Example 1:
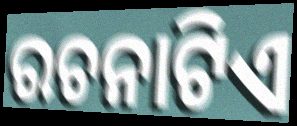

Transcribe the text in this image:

ରଚନାଟିଏ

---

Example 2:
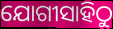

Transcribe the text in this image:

ଯୋଗୀସାହିଠୁ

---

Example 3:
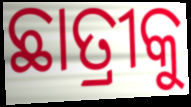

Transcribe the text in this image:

ଛାତ୍ରୀକୁ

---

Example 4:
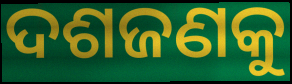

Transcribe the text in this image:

ଦଶଜଣକୁ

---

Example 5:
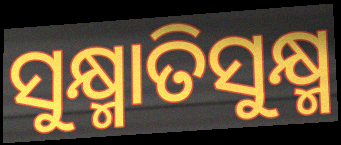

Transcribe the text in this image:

ସୁକ୍ଷ୍ମାତିସୁକ୍ଷ୍ମ